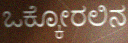
ಒಕ್ಕೋರಲಿನ